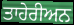
ਤਾਹੇਰੀਅਨ